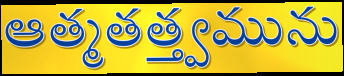
ఆత్మతత్త్వమును